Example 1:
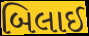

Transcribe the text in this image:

બિલાઈ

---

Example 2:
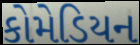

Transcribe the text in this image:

કોમેડિયન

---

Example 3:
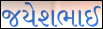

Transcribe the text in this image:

જયેશભાઈ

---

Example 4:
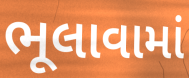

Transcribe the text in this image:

ભૂલાવામાં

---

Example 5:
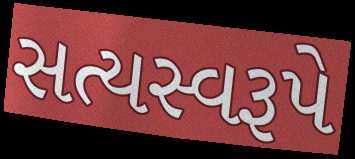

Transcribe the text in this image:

સત્યસ્વરૂપે